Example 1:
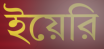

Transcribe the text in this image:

ইয়েরি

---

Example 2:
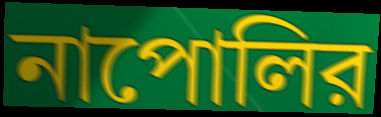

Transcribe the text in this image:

নাপোলির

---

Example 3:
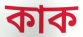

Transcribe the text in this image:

কাক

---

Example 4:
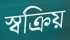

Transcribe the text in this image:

স্বক্রিয়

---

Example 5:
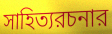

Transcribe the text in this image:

সাহিত্যরচনার